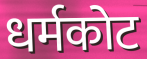
धर्मकोट